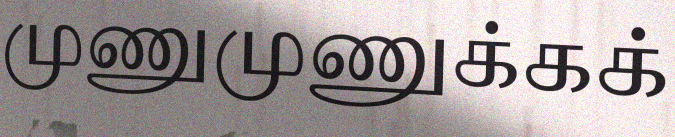
முணுமுணுக்கக்